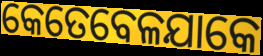
କେତେବେଳଯାକେ